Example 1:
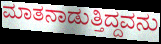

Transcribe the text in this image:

ಮಾತನಾಡುತ್ತಿದ್ದವನು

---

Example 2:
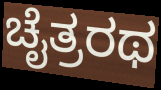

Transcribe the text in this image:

ಚೈತ್ರರಥ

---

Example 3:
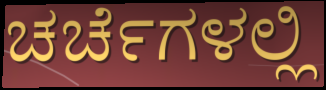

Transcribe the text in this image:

ಚರ್ಚೆಗಳಲ್ಲಿ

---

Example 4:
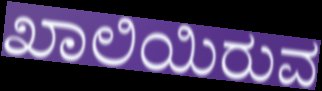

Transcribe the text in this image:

ಖಾಲಿಯಿರುವ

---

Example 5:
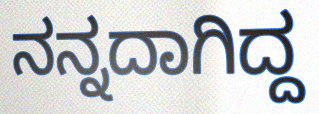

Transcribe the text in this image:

ನನ್ನದಾಗಿದ್ದ